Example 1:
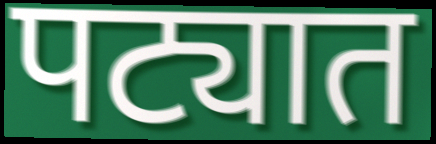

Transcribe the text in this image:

पट्यात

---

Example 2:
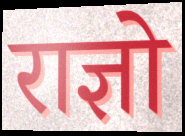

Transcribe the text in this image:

राज्ञो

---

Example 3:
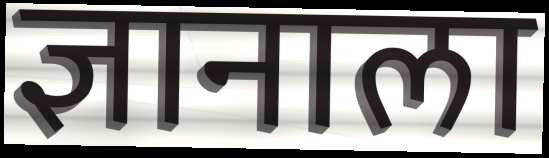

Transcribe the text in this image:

ज्ञानाला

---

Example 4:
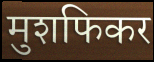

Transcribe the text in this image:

मुशफिकर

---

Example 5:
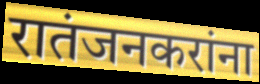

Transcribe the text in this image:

रातंजनकरांना